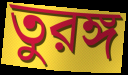
তুরঙ্গ